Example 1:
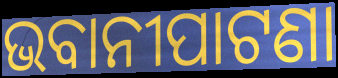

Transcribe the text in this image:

ଭବାନୀପାଟଣା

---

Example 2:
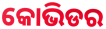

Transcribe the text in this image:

କୋଭିଡର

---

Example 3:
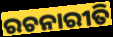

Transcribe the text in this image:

ରଚନାରୀତି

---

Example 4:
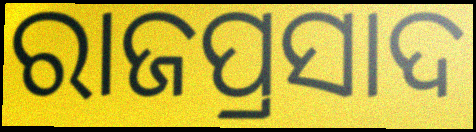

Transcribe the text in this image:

ରାଜପ୍ରସାଦ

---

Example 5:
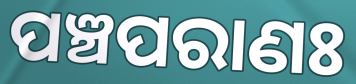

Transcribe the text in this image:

ପଞ୍ଚପରାଣଃ